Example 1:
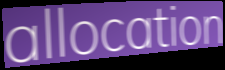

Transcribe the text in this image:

allocation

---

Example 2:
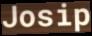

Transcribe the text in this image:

Josip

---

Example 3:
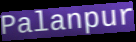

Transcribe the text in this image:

Palanpur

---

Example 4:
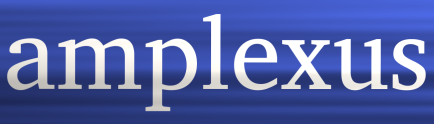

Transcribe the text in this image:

amplexus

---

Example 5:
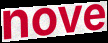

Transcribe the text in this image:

nove